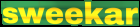
sweekar